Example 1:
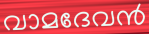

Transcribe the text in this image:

വാമദേവൻ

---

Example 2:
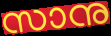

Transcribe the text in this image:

സാനു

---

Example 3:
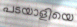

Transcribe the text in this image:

പടയാളിയെ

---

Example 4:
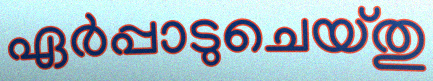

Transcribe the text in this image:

ഏർപ്പാടുചെയ്തു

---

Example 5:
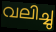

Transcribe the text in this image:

വലിച്ചു